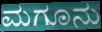
ಮಗೂನು